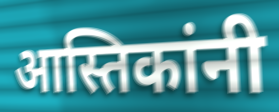
आस्तिकांनी